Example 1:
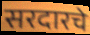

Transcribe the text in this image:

सरदारचे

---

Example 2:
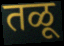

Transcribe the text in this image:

तळू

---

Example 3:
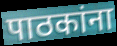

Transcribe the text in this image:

पाठकांना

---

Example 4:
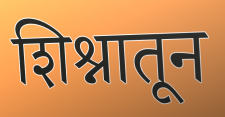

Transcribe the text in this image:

शिश्नातून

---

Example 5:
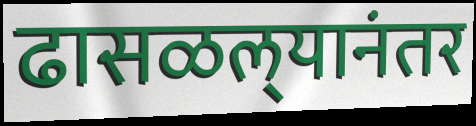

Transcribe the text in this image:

ढासळल्यानंतर